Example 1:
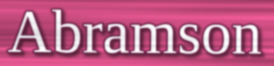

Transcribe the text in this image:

Abramson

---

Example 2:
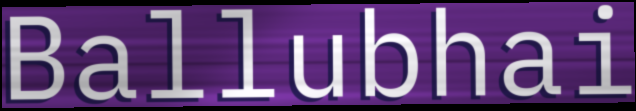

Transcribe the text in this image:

Ballubhai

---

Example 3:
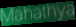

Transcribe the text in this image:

Mahathya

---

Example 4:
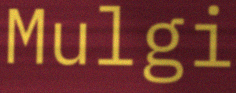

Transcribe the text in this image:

Mulgi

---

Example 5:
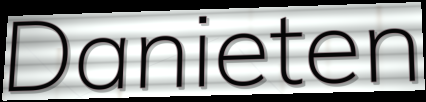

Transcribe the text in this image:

Danieten